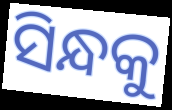
ସିନ୍ଧକୁ